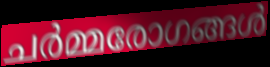
ചർമ്മരോഗങ്ങൾ